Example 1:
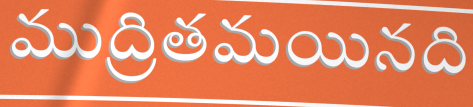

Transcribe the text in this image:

ముద్రితమయినది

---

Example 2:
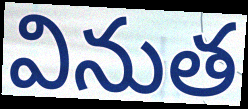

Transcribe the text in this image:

వినుత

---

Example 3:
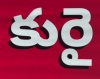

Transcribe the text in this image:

కురై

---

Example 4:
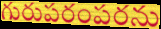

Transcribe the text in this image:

గురుపరంపరను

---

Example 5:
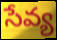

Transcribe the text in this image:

సేవ్య